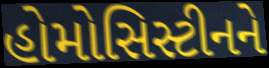
હોમોસિસ્ટીનને